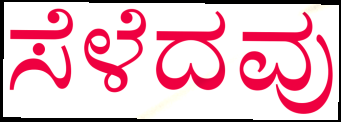
ಸೆಳೆದವು